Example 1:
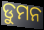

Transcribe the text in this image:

ଡୁମନ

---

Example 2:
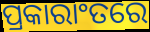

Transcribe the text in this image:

ପ୍ରକାରାଂତରେ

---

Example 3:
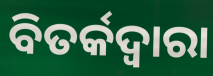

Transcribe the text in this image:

ବିତର୍କଦ୍ୱାରା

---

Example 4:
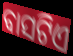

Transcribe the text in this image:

ବାସଟିଏ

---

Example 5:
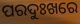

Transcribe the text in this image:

ପରଦୁଃଖରେ